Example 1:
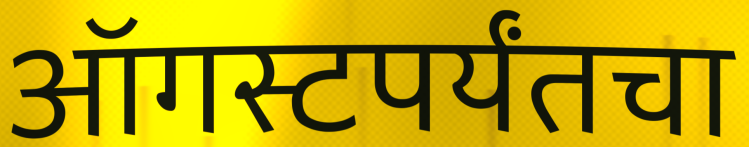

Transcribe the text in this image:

ऑगस्टपर्यंतचा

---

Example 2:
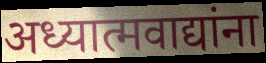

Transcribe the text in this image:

अध्यात्मवाद्यांना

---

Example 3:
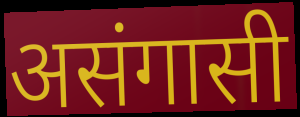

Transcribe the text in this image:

असंगासी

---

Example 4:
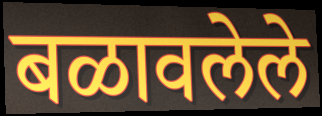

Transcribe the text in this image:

बळावलेले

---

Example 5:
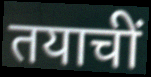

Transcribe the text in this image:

तयाचीं